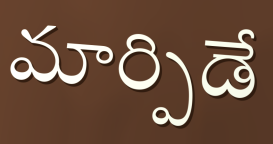
మార్పిడే